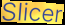
Slicer